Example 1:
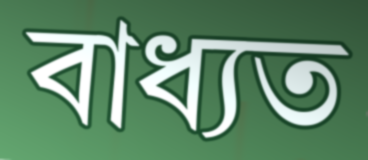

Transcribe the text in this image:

বাধ্যত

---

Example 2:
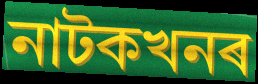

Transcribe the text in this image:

নাটকখনৰ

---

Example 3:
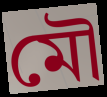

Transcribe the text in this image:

মৌ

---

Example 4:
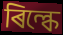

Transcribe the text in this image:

ৰিল্কে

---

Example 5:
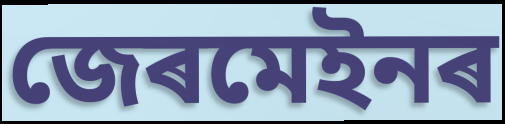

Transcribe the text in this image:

জেৰমেইনৰ